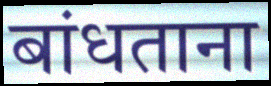
बांधताना